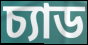
চ্যাড